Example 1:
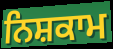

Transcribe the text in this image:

ਨਿਸ਼ਕਾਮ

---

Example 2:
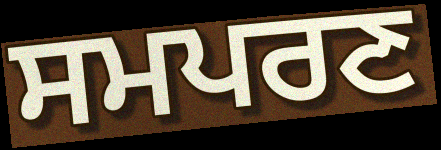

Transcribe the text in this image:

ਸਮਪਰਣ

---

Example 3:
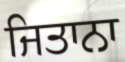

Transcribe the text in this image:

ਜਿਤਾਨਾ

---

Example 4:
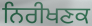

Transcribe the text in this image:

ਨਿਰੀਖਣਕ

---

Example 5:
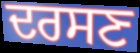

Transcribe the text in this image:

ਦਰਸਣ